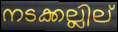
നടക്കല്ലില്